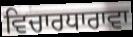
ਵਿਚਾਰਧਾਰਾਵਾ